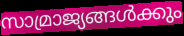
സാമ്രാജ്യങ്ങൾക്കും